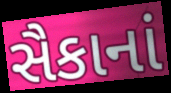
સૈકાનાં